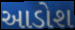
આડોશ